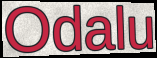
Odalu